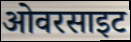
ओवरसाइट